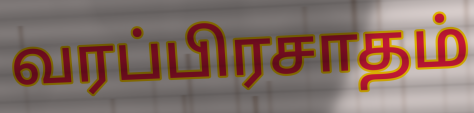
வரப்பிரசாதம்